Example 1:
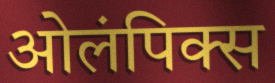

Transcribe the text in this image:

ओलंपिक्‍स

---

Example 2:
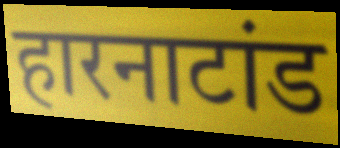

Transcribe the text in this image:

हारनाटांड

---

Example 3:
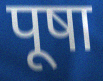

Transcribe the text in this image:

पूषा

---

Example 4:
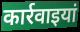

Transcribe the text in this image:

कार्रवाइयां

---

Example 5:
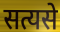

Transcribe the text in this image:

सत्यसे